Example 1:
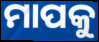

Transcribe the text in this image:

ମାପକୁ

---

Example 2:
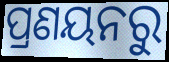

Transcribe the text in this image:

ପ୍ରଣୟନରୁ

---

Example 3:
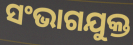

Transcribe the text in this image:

ସଂଭାଗଯୁକ୍ତ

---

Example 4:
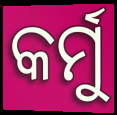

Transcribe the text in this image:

କର୍ମୁ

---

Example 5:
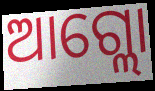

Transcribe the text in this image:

ଆଗ୍ଲୋ